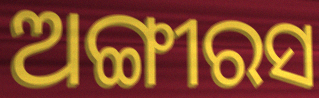
ଅଙ୍ଗୀରସ